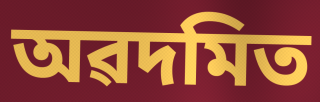
অৱদমিত